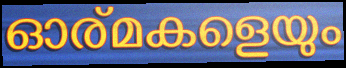
ഓര്മകളെയും